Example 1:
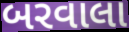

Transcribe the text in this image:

બરવાલા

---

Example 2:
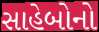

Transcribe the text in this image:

સાહેબોનો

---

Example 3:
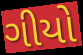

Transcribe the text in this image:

ગીયો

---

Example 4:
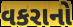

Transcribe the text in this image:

વકરાનો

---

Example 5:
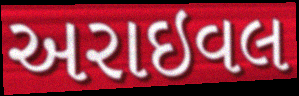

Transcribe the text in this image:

અરાઇવલ